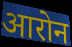
आरोन